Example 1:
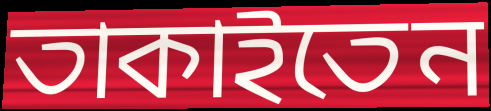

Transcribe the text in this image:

তাকাইতেন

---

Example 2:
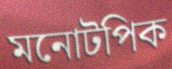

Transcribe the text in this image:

মনোটপিক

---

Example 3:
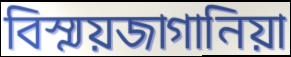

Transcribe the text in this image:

বিস্ময়জাগানিয়া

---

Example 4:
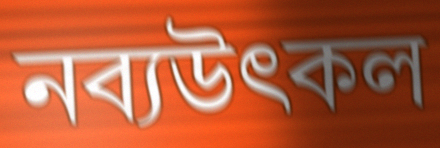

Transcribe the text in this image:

নব্যউৎকল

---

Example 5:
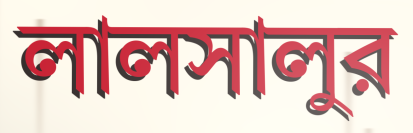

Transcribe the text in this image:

লালসালুর